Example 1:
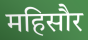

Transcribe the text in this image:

महिसौर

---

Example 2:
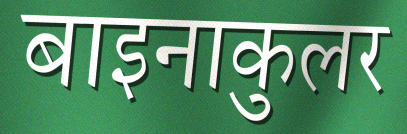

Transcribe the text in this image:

बाइनाकुलर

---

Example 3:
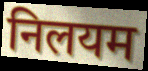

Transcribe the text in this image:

निलयम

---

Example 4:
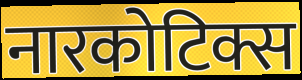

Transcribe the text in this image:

नारकोटिक्स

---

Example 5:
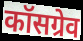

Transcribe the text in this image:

कॉसग्रेव